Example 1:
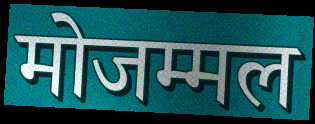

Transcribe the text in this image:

मोजम्मल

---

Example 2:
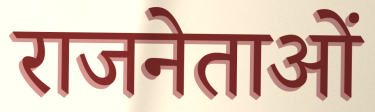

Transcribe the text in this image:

राजनेताओं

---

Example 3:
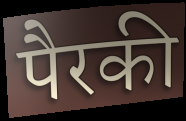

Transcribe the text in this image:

पैरकी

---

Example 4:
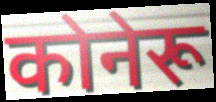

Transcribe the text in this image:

कोनेरू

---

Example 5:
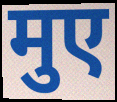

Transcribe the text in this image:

मुए